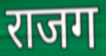
राजग